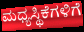
ಮಧ್ಯಸ್ಥಿಕೆಗಳಿಗೆ